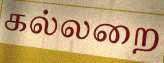
கல்லறை